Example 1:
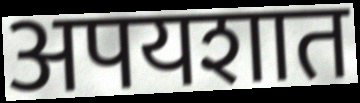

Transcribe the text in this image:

अपयशात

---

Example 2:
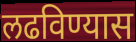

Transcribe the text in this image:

लढविण्यास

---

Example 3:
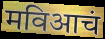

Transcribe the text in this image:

मविआचं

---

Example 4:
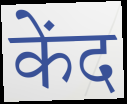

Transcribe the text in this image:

केंद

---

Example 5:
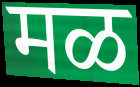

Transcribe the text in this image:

मळ